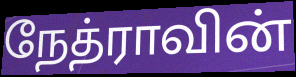
நேத்ராவின்